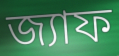
জ্যাফ